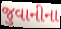
જુવાનીના